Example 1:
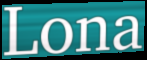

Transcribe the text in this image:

Lona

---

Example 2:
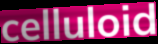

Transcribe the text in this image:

celluloid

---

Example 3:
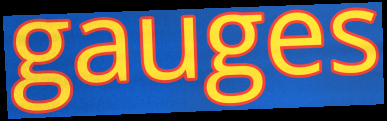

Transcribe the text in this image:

gauges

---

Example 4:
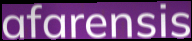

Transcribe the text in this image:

afarensis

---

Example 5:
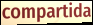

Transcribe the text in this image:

compartida